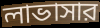
লাভাসার